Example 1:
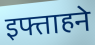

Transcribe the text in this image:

इफ्ताहने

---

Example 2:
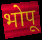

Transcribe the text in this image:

भोपू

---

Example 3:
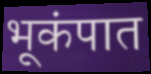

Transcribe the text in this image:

भूकंपात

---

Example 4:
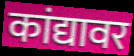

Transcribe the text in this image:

कांद्यावर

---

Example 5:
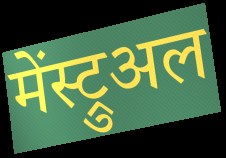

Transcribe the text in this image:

मेंस्ट्रुअल